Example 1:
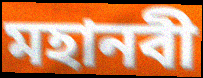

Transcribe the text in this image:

মহানবী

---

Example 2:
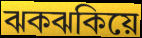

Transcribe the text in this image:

ঝকঝকিয়ে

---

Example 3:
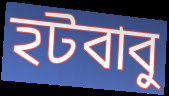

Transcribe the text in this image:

হটবাবু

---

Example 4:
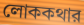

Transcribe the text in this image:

লোককথার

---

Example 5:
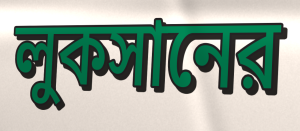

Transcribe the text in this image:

লুকসানের